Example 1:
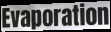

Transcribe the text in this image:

Evaporation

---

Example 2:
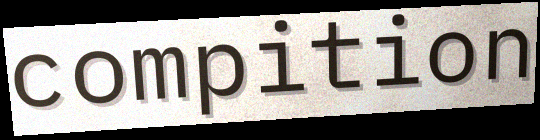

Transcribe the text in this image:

compition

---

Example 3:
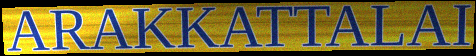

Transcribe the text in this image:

ARAKKATTALAI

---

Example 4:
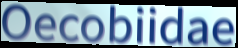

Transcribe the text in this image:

Oecobiidae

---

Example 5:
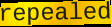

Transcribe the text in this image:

repealed